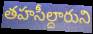
తహసీల్దారుని